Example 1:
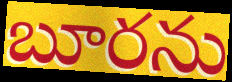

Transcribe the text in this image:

బూరను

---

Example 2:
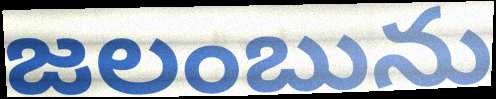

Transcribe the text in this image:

జలంబును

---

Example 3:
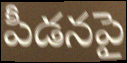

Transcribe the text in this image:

పీడనపై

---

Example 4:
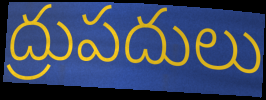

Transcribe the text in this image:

ద్రుపదులు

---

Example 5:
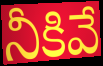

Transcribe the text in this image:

నీకివే